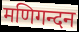
मणिगन्दन